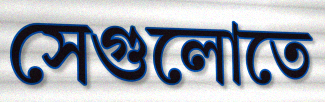
সেগুলোতে